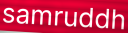
samruddh